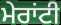
ਮੇਰਾਂਟੀ